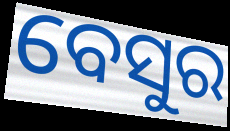
ବେସୁର